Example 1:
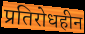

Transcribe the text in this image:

प्रतिरोधहीन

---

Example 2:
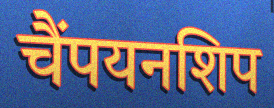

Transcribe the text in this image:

चैंपयनशिप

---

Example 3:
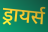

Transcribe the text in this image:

ड्रायर्स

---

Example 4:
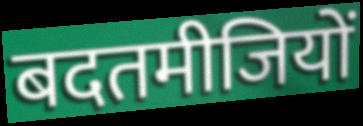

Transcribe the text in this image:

बदतमीजियों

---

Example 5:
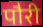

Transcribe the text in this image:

पौरी